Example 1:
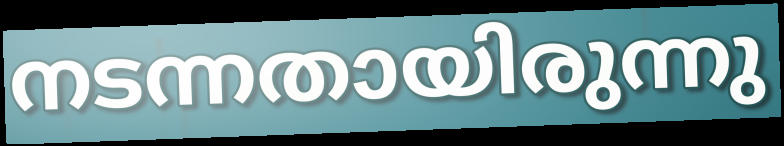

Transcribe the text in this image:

നടന്നതായിരുന്നു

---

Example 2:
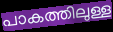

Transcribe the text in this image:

പാകത്തിലുള്ള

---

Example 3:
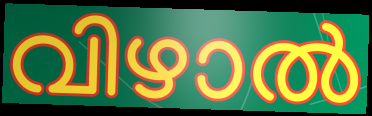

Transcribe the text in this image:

വിഴാൽ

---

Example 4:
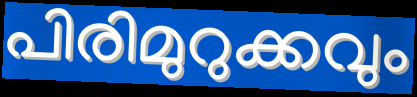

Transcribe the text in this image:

പിരിമുറുക്കവും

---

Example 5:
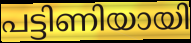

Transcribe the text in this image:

പട്ടിണിയായി